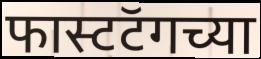
फास्टटॅगच्या